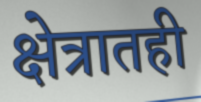
क्षेत्रातही